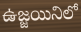
ఉజ్జయినిలో